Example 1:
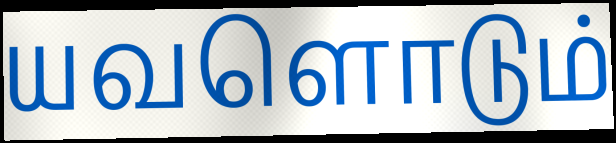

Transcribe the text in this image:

யவளொடும்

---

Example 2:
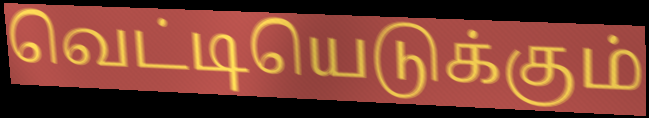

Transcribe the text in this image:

வெட்டியெடுக்கும்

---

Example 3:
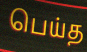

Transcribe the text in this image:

பெய்த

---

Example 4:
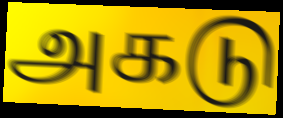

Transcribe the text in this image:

அகடு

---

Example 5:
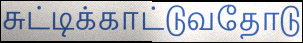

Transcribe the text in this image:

சுட்டிக்காட்டுவதோடு